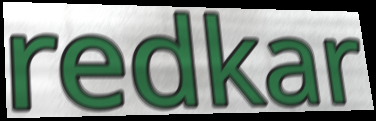
redkar